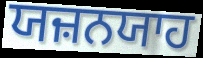
ਯਜ਼ਨਯਾਹ